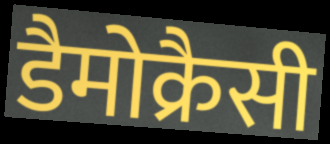
डैमोक्रैसी